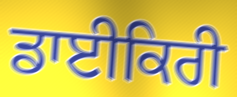
ਡਾਈਕਿਰੀ